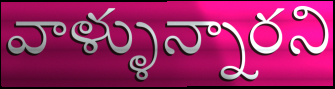
వాళ్ళున్నారని